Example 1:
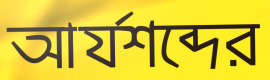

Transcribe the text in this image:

আর্যশব্দের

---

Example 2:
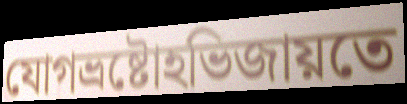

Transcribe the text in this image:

যোগভ্রষ্টোহভিজায়তে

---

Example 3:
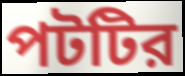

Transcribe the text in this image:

পটটির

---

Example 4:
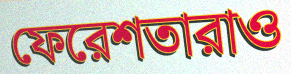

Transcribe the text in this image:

ফেরেশতারাও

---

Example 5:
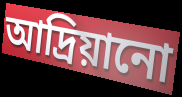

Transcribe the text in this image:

আদ্রিয়ানো